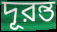
দূরন্ত